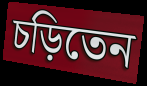
চড়িতেন